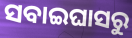
ସବାଇଘାସରୁ